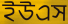
ইউএস